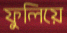
ফুলিয়ে